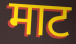
माट